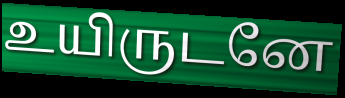
உயிருடனே